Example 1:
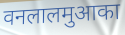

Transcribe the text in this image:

वनलालमुआका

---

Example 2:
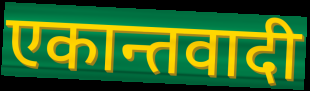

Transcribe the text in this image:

एकान्तवादी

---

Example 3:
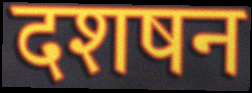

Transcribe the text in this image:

दशषन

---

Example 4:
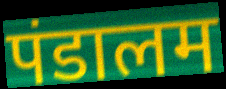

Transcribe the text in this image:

पंडालम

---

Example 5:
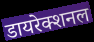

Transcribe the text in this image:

डायरेक्शनल